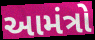
આમંત્રો